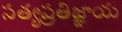
సత్యప్రతిజ్ఞాయ